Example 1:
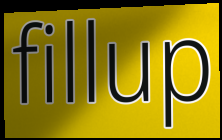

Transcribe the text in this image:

fillup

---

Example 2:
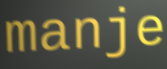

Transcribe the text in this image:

manje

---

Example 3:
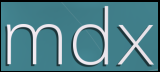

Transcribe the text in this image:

mdx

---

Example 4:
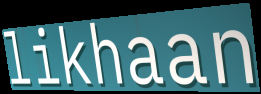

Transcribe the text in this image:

likhaan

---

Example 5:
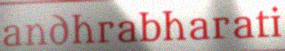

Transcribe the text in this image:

andhrabharati